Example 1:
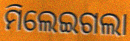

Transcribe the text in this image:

ମିଲେଇଗଲା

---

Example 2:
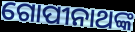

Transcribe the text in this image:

ଗୋପୀନାଥଙ୍କ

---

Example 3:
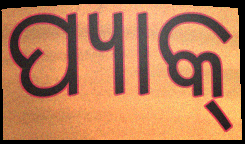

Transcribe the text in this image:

ପ୍ୟାକ୍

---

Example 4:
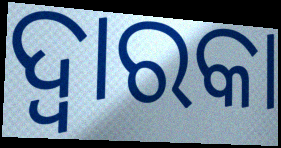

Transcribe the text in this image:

ଦ୍ୱାରକା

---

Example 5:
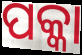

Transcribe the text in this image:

ପକ୍କା